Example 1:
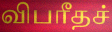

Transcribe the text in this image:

விபரீதச்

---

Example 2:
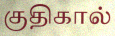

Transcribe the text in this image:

குதிகால்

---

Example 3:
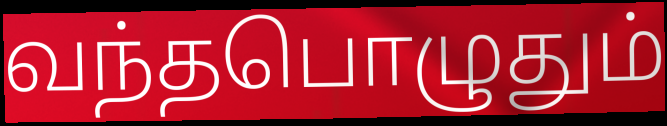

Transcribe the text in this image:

வந்தபொழுதும்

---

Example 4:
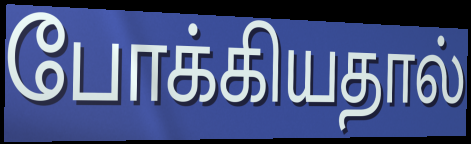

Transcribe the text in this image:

போக்கியதால்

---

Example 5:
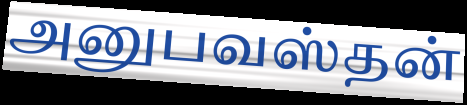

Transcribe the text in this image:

அனுபவஸ்தன்